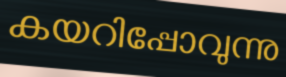
കയറിപ്പോവുന്നു